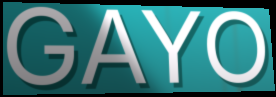
GAYO